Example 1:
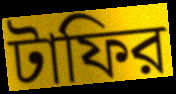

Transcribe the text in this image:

টাফির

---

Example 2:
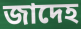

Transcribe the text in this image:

জাদেহ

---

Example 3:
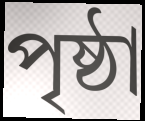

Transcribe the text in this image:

পৃষ্ঠা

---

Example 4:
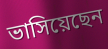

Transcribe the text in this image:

ভাসিয়েছেন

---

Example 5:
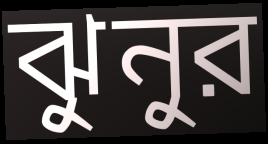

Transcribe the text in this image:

ঝুনুর